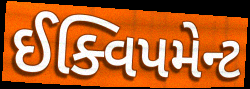
ઈક્વિપમેન્ટ